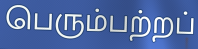
பெரும்பற்றப்